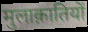
मुलाक़ातियों